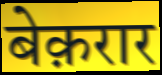
बेक़रार